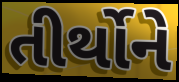
તીર્થોને